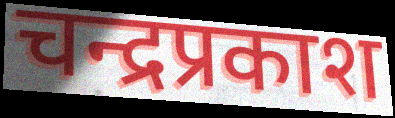
चन्द्रप्रकाश